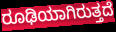
ರೂಢಿಯಾಗಿರುತ್ತದೆ